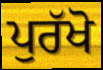
ਪੁਰੱਖੋ